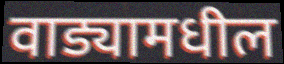
वाड्यामधील